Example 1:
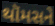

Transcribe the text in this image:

થૉમસને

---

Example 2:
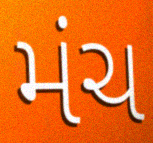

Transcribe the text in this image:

મંચ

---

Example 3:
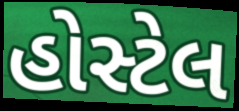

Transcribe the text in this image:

હોસ્ટેલ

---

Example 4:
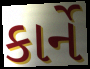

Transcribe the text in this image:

કાર્ને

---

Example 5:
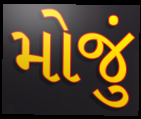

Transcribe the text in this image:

મોજું